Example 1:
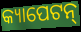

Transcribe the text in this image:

କ୍ୟାପେଟନ୍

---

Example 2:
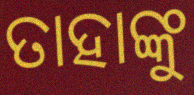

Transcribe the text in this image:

ତାହାଙ୍କୁ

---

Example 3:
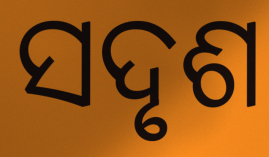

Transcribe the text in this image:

ସଦୃଶ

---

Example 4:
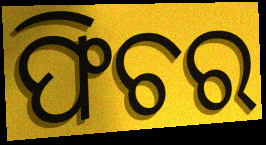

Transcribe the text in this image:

ଫିଚର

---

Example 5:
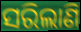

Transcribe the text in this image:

ସରିଲାଣି